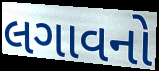
લગાવનો